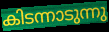
കിടന്നാടുന്നു